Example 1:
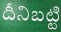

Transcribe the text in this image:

దీనిబట్టి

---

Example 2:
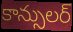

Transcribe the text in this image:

కాన్సులర్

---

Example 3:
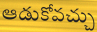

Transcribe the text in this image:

ఆడుకోవచ్చు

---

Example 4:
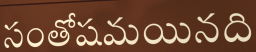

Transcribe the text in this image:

సంతోషమయినది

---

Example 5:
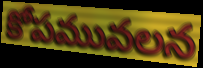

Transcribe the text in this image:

కోపమువలన